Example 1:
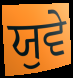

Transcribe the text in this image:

ਯੁਵੇ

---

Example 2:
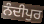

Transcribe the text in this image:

ਨੰਦੀਪੁਰ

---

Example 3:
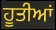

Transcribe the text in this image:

ਹੂਤੀਆਂ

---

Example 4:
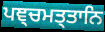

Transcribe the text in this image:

ਪਞ੍ਚਮਤ੍ਤਾਨਿ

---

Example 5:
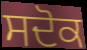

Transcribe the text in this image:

ਸਦੋਕ